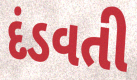
દંડવતી